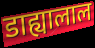
डाह्यालाल